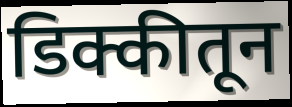
डिक्कीतून